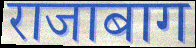
राजाबाग